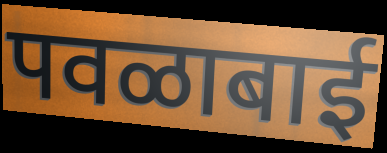
पवळाबाई